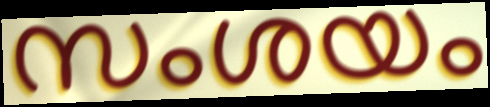
സംശയം